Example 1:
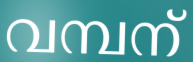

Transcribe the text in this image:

വമ്പന്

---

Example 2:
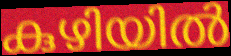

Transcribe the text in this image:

കുഴിയിൽ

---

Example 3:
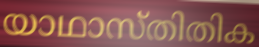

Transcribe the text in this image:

യാഥാസ്തിതിക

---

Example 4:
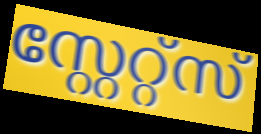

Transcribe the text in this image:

സ്റ്റേറ്റ്സ്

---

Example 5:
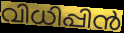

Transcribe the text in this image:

വിധിപ്പിൻ